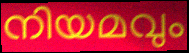
നിയമവും